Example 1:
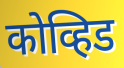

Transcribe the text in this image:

कोव्हिड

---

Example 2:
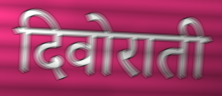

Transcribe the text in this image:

दिवोराती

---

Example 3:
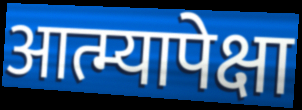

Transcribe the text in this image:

आत्म्यापेक्षा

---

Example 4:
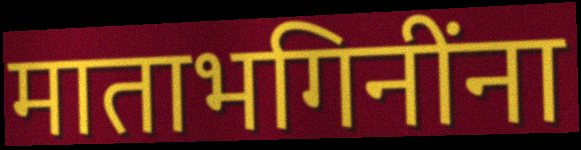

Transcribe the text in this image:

माताभगिनींना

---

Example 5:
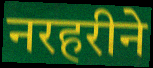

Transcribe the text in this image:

नरहरीने